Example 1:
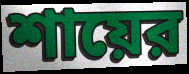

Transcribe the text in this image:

শায়ের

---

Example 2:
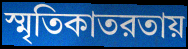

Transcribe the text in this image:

স্মৃতিকাতরতায়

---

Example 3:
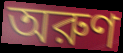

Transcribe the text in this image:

অরুণ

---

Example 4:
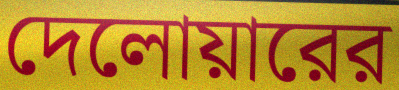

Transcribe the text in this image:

দেলোয়ারের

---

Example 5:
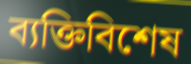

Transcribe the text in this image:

ব্যক্তিবিশেষ